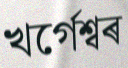
খৰ্গেশ্বৰ